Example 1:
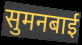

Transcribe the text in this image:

सुमनबाई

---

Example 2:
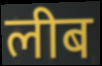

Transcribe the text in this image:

लीब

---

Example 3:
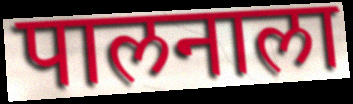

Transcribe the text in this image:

पालनाला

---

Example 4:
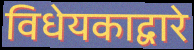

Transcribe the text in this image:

विधेयकाद्वारे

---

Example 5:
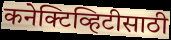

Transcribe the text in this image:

कनेक्टिव्हिटीसाठी